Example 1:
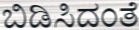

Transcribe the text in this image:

ಬಿಡಿಸಿದಂತೆ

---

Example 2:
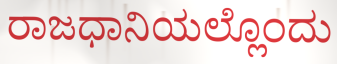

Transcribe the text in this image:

ರಾಜಧಾನಿಯಲ್ಲೊಂದು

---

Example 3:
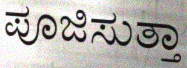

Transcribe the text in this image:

ಪೂಜಿಸುತ್ತಾ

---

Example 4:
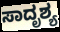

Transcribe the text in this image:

ಸಾದೃಶ್ಯ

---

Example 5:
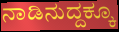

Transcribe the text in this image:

ನಾಡಿನುದ್ದಕ್ಕೂ